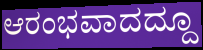
ಆರಂಭವಾದದ್ದೂ